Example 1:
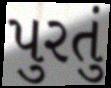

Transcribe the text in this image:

પુરતું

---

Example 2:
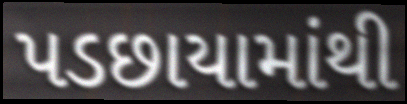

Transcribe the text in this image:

પડછાયામાંથી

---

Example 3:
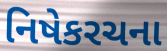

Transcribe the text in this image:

નિષેકરચના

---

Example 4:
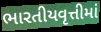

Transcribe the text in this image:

ભારતીયવૃત્તીમાં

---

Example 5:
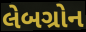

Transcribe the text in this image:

લેબગ્રોન